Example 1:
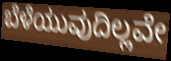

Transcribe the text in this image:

ಬೆಳೆಯುವುದಿಲ್ಲವೇ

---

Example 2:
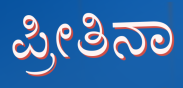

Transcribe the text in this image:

ಪ್ರೀತಿನಾ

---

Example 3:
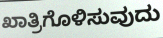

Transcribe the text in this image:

ಖಾತ್ರಿಗೊಳಿಸುವುದು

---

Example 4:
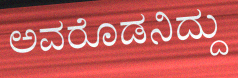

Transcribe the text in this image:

ಅವರೊಡನಿದ್ದು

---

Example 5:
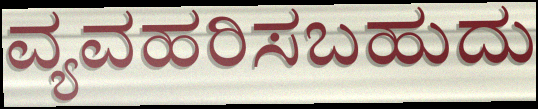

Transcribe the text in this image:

ವ್ಯವಹರಿಸಬಹುದು